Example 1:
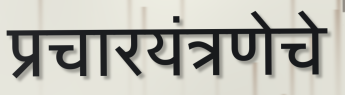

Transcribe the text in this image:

प्रचारयंत्रणेचे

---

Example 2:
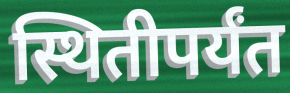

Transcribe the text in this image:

स्थितीपर्यंत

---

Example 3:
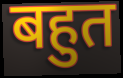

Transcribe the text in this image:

बहुत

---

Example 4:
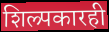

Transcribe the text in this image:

शिल्पकारही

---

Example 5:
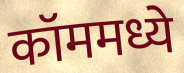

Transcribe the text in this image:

कॉममध्ये